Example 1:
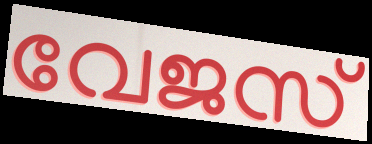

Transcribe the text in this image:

വേജസ്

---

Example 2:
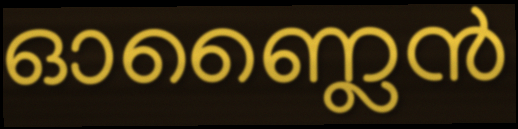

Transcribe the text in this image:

ഓണ്ലൈൻ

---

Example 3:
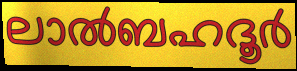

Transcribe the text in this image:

ലാൽബഹദൂർ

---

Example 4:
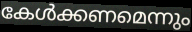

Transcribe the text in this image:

കേൾക്കണമെന്നും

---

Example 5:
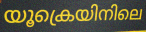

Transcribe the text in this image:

യൂക്രെയിനിലെ